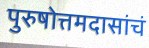
पुरुषोत्तमदासांचं